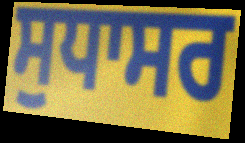
ਸੁਧਾਸਰ